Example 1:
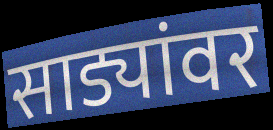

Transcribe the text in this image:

साड्यांवर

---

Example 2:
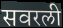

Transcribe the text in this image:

सवरली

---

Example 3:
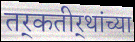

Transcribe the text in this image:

तर्कतीर्थांच्या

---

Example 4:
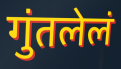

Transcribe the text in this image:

गुंतलेलं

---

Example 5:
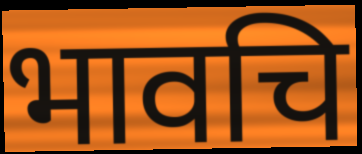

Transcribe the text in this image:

भावचि